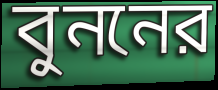
বুননের